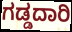
ಗಡ್ಡದಾರಿ